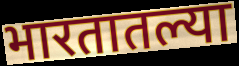
भारतातल्या